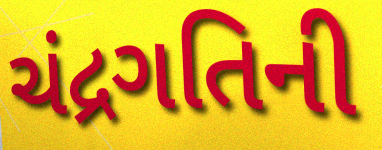
ચંદ્રગતિની